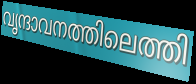
വൃന്ദാവനത്തിലെത്തി